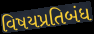
વિષયપ્રતિબંધ